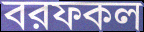
বরফকল